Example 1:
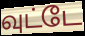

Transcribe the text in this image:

வுட்டே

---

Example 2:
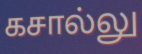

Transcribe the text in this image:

கசால்லு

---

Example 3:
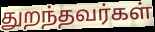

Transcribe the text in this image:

துறந்தவர்கள்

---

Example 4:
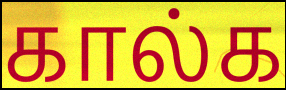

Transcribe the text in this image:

கால்க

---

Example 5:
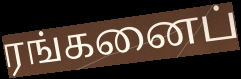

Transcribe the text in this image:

ரங்கனைப்